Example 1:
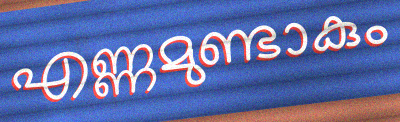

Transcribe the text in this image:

എണ്ണമുണ്ടാകും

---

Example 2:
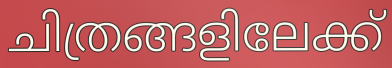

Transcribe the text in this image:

ചിത്രങ്ങളിലേക്ക്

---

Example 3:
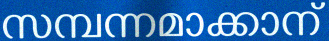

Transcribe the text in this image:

സമ്പന്നമാക്കാന്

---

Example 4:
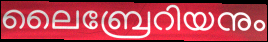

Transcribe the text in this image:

ലൈബ്രേറിയനും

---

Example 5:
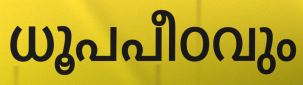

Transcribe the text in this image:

ധൂപപീഠവും